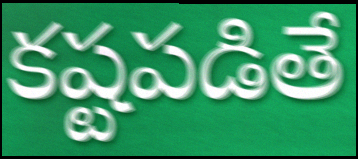
కష్టపడితే